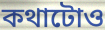
কথাটোও